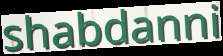
shabdanni